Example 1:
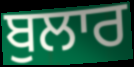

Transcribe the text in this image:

ਬੁਲਾਰ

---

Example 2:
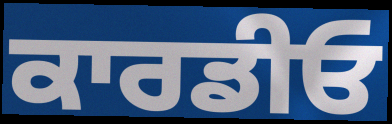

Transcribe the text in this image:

ਕਾਰਡੀਓ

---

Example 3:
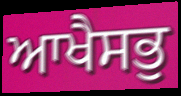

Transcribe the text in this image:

ਆਖੈਸਭੁ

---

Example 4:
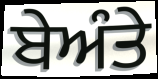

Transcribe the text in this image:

ਬੇਅੰਤੇ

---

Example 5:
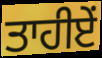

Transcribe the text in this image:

ਤਾਹੀਏਂ